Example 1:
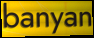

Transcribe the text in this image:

banyan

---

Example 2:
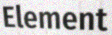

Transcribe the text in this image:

Element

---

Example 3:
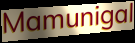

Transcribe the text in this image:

Mamunigal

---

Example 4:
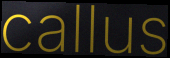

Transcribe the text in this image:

callus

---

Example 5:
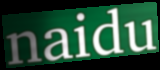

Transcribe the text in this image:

naidu